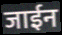
जाईन